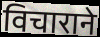
विचाराने